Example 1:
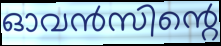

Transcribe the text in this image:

ഓവൻസിന്റെ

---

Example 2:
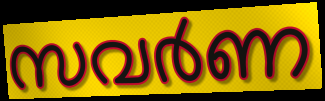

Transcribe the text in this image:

സവർണ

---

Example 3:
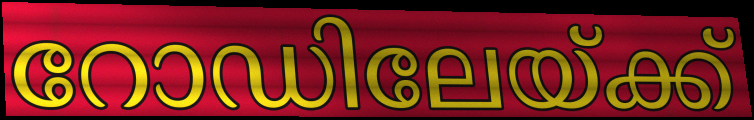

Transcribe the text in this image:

റോഡിലേയ്ക്ക്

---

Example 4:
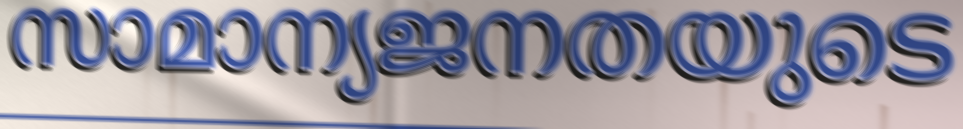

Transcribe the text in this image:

സാമാന്യജനതയുടെ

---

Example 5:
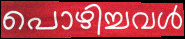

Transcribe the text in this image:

പൊഴിച്ചവൾ